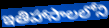
ఇతిహాసాలలోని